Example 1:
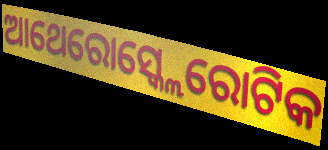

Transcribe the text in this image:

ଆଥେରୋସ୍କ୍ଲେରୋଟିକ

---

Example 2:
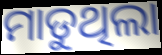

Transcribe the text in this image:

ମାଡୁଥିଲା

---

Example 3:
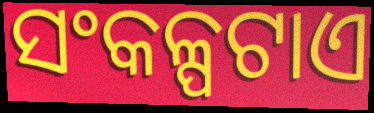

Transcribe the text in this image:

ସଂକଳ୍ପଟାଏ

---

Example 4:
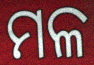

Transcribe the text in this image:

ମଳ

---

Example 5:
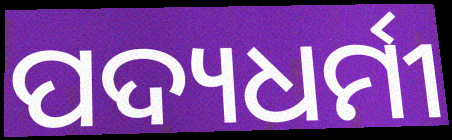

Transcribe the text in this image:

ପଦ୍ୟଧର୍ମୀ